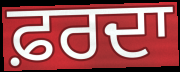
ਫ਼ਰਦਾ